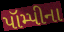
પૉમ્પીના